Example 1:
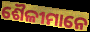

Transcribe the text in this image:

ଶୈଳୀମାନେ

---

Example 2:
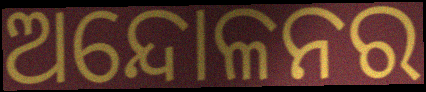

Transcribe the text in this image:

ଅନ୍ଦୋଳନର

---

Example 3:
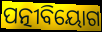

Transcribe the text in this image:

ପତ୍ନୀବିୟୋଗ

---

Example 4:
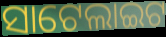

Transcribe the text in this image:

ସାଟେଲାଇଟ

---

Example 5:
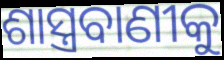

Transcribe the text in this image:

ଶାସ୍ତ୍ରବାଣୀକୁ